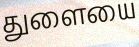
துளையை